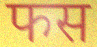
फस